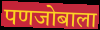
पणजोबाला